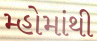
મ્હોમાંથી